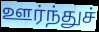
ஊர்ந்துச்